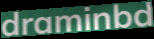
draminbd